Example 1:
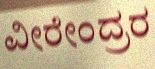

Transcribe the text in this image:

ವೀರೇಂದ್ರರ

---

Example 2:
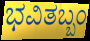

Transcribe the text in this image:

ಭವಿತಬ್ಬಂ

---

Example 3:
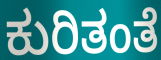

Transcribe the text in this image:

ಕುರಿತಂತೆ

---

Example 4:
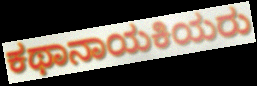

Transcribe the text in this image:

ಕಥಾನಾಯಕಿಯರು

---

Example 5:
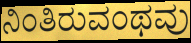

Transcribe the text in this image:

ನಿಂತಿರುವಂಥವು